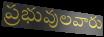
ప్రభువులవారు